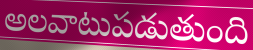
అలవాటుపడుతుంది